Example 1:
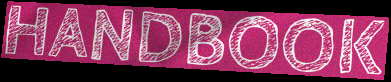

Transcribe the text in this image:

HANDBOOK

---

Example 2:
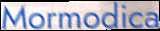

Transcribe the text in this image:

Mormodica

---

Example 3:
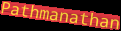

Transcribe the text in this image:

Pathmanathan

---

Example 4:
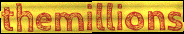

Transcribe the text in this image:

themillions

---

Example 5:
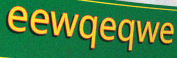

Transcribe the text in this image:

eewqeqwe